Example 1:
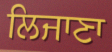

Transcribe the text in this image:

ਲਿਜਾਣਾ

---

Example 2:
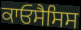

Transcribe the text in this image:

ਕਾਓਸੈਸਿਸ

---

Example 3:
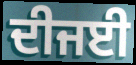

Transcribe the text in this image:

ਦੀਜਈ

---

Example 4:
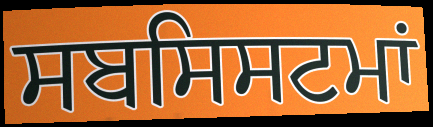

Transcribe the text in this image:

ਸਬਸਿਸਟਮਾਂ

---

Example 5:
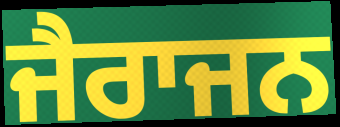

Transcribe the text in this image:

ਜੈਰਾਜਨ